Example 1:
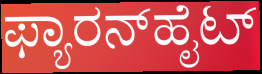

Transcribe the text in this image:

ಫ್ಯಾರನ್‌ಹೈಟ್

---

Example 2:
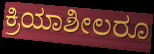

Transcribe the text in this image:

ಕ್ರಿಯಾಶೀಲರೂ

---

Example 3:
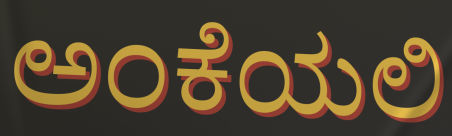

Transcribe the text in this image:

ಅಂಕೆಯಲಿ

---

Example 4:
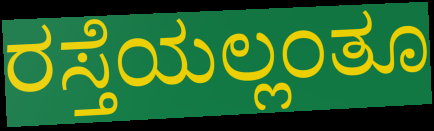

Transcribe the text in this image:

ರಸ್ತೆಯಲ್ಲಂತೂ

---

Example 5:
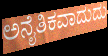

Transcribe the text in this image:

ಅನೈತಿಕವಾದುದು